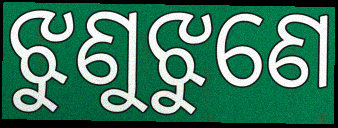
ଝୁଣୁଝୁଣେ